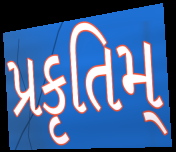
પ્રકૃતિમ્